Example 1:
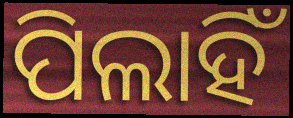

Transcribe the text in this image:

ପିଲାହିଁ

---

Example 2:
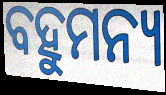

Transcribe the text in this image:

ବହୁମନ୍ୟ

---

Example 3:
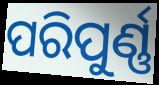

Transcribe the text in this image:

ପରିପୁର୍ଣ୍ଣ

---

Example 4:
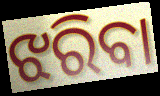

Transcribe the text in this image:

ଝରିବା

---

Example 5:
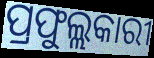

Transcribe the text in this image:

ପ୍ରଫୁଲ୍ଲକାରୀ